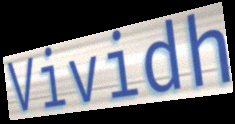
Vividh